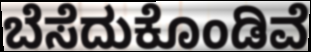
ಬೆಸೆದುಕೊಂಡಿವೆ